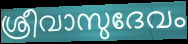
ശ്രീവാസുദേവം